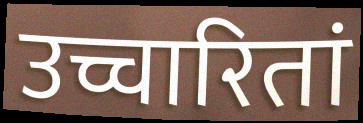
उच्चारितां